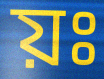
য়ঃ